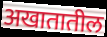
अखातातील